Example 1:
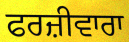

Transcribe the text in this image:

ਫਰਜ਼ੀਵਾਰਾ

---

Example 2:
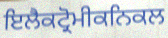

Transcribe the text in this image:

ਇਲੈਕਟ੍ਰੋਮੀਕਨਿਕਲ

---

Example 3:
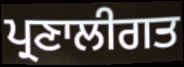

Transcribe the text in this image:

ਪ੍ਰਣਾਲੀਗਤ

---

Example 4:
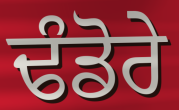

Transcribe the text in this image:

ਢੰਡੋਰੇ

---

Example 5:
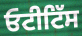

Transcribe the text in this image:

ਓਟੀਟਿੱਸ